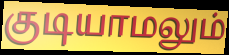
குடியாமலும்